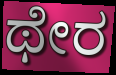
ಥೇರ